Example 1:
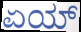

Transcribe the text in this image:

ಏಯ್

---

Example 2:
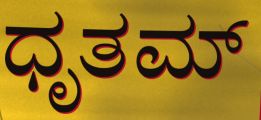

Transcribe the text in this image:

ಧೃತಮ್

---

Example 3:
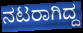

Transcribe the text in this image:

ನಟರಾಗಿದ್ದ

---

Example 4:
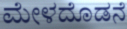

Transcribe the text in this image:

ಮೇಳದೊಡನೆ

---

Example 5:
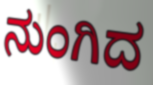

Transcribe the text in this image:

ನುಂಗಿದ